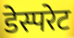
डेस्परेट